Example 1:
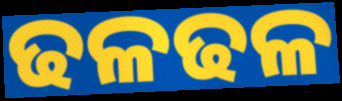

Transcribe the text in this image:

ଢଳଢଳ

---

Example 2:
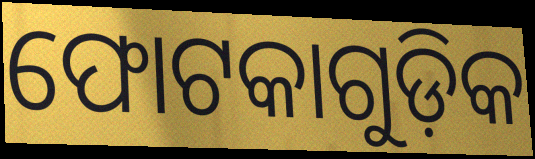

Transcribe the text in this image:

ଫୋଟକାଗୁଡ଼ିକ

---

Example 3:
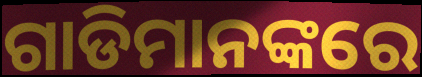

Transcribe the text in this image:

ଗାଡିମାନଙ୍କରେ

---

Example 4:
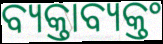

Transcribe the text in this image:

ବ୍ୟକ୍ତାବ୍ୟକ୍ତଂ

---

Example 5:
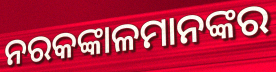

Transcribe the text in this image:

ନରକଙ୍କାଳମାନଙ୍କର